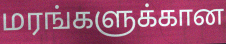
மரங்களுக்கான